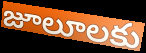
జూలూలకు